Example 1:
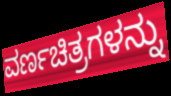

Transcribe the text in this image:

ವರ್ಣಚಿತ್ರಗಳನ್ನು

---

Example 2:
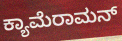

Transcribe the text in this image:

ಕ್ಯಾಮೆರಾಮನ್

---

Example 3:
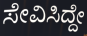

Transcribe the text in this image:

ಸೇವಿಸಿದ್ದೇ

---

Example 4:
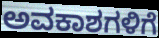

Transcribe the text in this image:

ಅವಕಾಶಗಳಿಗೆ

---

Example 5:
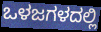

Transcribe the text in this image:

ಒಳಜಗಳದಲ್ಲಿ